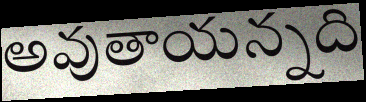
అవుతాయన్నది